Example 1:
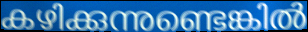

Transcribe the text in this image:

കഴിക്കുന്നുണ്ടെങ്കിൽ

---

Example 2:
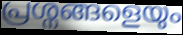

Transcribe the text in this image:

പ്രശ്നങ്ങളെയും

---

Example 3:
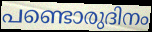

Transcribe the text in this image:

പണ്ടൊരുദിനം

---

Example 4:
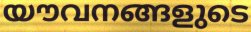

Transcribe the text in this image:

യൗവനങ്ങളുടെ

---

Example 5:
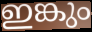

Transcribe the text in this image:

ഇങ്കും